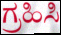
ಗ್ರಹಿಸಿ